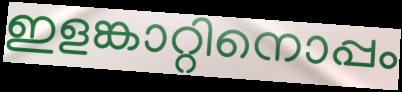
ഇളങ്കാറ്റിനൊപ്പം